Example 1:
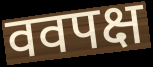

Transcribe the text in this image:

ववपक्ष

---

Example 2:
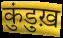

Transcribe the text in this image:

कुंड़ुख़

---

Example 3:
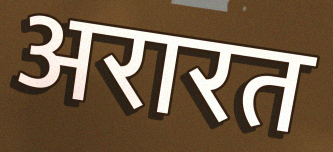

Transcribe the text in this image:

अरारत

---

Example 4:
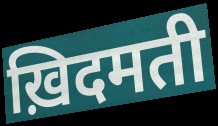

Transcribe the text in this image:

ख़िदमती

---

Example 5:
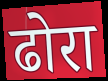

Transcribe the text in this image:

ढोरा